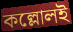
কল্লোলই